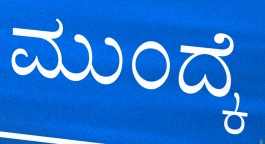
ಮುಂದ್ಕೆ